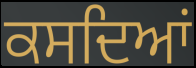
ਕਸਦਿਆਂ